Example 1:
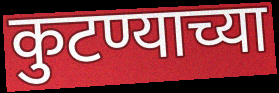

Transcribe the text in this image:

कुटण्याच्या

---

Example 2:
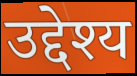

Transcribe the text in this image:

उद्देश्य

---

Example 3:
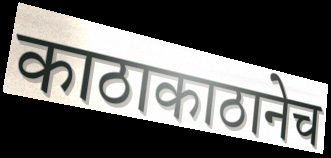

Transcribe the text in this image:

काठाकाठानेच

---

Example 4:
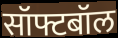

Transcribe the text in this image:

सॉफ्टबॉल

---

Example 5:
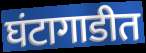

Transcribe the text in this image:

घंटागाडीत